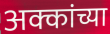
अक्कांच्या